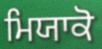
ਮਿਯਾਕੋ